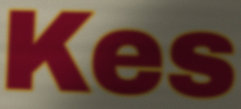
Kes